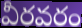
వీరవరం